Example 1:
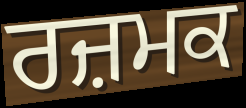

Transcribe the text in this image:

ਰਜ਼ਮਕ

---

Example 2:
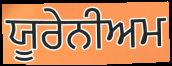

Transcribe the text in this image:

ਯੂਰੇਨੀਅਮ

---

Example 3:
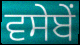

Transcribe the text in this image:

ਵਸੇਬੇਂ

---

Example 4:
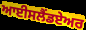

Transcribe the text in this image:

ਆਈਸਲੈਂਡਏਅਰ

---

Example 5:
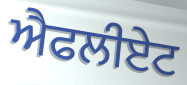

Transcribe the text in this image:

ਐਫਲੀਏਟ